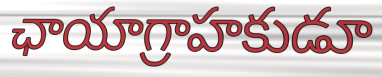
ఛాయాగ్రాహకుడూ